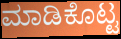
ಮಾಡಿಕೊಟ್ಟ